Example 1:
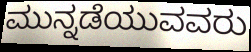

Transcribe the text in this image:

ಮುನ್ನಡೆಯುವವರು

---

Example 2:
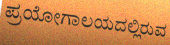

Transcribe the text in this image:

ಪ್ರಯೋಗಾಲಯದಲ್ಲಿರುವ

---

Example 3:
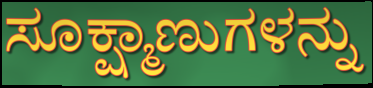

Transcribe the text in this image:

ಸೂಕ್ಷ್ಮಾಣುಗಳನ್ನು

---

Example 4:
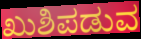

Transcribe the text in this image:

ಖುಶಿಪಡುವ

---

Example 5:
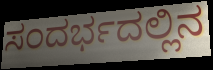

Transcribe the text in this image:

ಸಂದರ್ಭದಲ್ಲಿನ